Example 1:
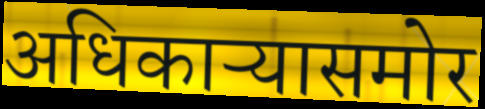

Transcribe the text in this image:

अधिकाऱ्यासमोर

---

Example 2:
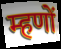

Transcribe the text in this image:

म्हणों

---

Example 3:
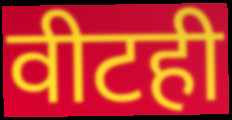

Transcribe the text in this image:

वीटही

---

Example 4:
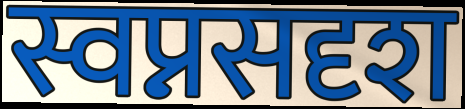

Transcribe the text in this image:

स्वप्नसदृश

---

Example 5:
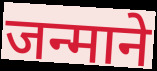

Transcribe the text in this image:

जन्माने